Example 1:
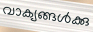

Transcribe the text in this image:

വാക്യങ്ങൾക്കു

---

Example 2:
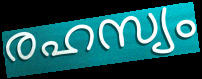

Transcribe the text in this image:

രഹസ്യം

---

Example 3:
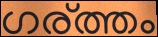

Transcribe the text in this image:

ഗര്ത്തം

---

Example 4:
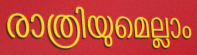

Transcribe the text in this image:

രാത്രിയുമെല്ലാം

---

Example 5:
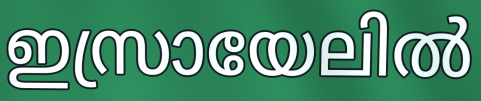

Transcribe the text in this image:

ഇസ്രായേലിൽ